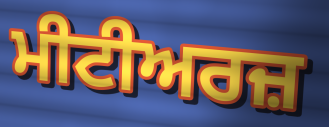
ਮੀਟੀਅਰਜ਼